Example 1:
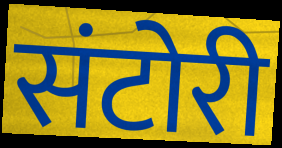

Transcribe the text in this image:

संटोरी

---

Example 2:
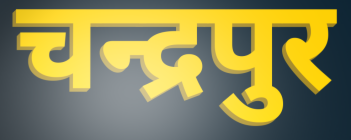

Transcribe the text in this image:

चन्द्रपुर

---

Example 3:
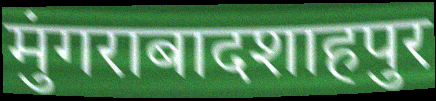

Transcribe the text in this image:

मुंगराबादशाहपुर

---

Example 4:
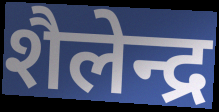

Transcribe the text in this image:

शैलेन्द्र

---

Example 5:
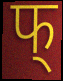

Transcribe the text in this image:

फ्